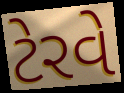
ટેરવે